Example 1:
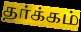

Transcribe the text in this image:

தர்க்கம்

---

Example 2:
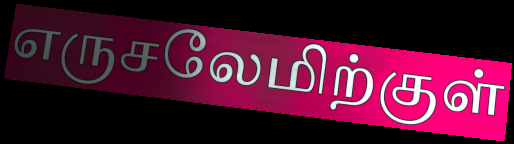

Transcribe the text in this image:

எருசலேமிற்குள்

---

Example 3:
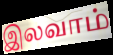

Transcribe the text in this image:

இலவாம்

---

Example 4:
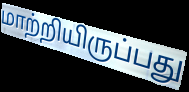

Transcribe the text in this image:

மாற்றியிருப்பது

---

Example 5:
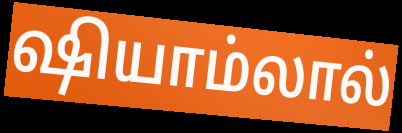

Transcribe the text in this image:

ஷியாம்லால்